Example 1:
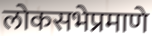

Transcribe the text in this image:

लोकसभेप्रमाणे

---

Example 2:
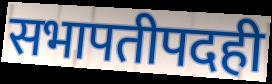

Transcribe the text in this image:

सभापतीपदही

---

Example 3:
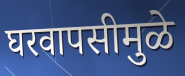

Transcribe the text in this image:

घरवापसीमुळे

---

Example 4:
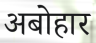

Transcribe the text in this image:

अबोहार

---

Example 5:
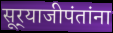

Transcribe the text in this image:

सूर्याजीपंतांना